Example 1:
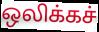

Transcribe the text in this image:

ஒலிக்கச்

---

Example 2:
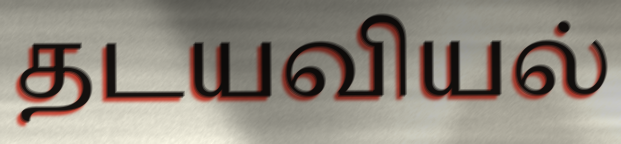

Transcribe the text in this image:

தடயவியல்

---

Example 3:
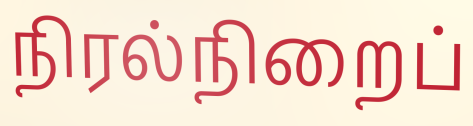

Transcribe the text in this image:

நிரல்நிறைப்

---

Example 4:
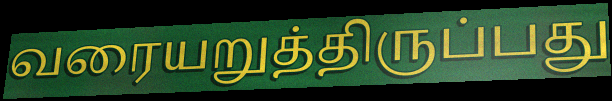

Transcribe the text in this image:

வரையறுத்திருப்பது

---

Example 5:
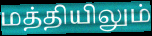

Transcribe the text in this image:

மத்தியிலும்